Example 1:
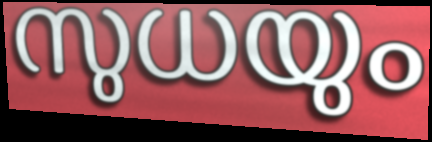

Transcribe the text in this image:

സുധയും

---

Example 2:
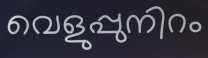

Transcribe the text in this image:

വെളുപ്പുനിറം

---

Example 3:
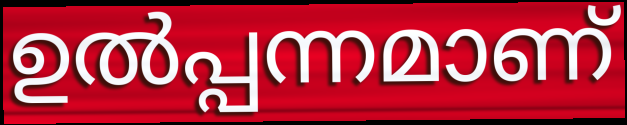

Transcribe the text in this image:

ഉൽപ്പന്നമാണ്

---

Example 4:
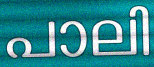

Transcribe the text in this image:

പാലി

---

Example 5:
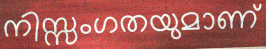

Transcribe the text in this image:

നിസ്സംഗതയുമാണ്